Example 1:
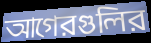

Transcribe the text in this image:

আগেরগুলির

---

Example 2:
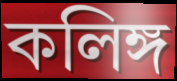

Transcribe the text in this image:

কলিঙ্গ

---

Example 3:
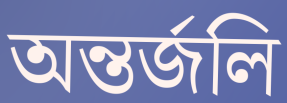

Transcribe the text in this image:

অন্তর্জলি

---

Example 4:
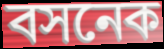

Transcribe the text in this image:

বসনেক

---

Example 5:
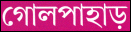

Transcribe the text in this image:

গোলপাহাড়